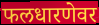
फलधारणेवर